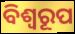
ବିଶ୍ବରୂପ